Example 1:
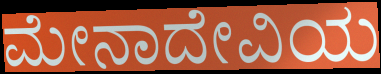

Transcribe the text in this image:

ಮೇನಾದೇವಿಯ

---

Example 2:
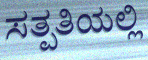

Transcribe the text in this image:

ಸತ್ಪತಿಯಲ್ಲಿ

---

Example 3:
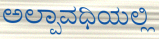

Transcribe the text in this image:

ಅಲ್ಪಾವಧಿಯಲ್ಲಿ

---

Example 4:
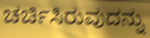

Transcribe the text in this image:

ಚರ್ಚಿಸಿರುವುದನ್ನು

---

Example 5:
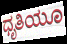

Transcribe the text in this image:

ಧೃತಿಯೂ